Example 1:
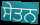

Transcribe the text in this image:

ਸੇਤਨ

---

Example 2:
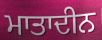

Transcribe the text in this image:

ਮਾਤਾਦੀਨ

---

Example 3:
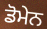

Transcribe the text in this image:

ਡੋਮੇਨ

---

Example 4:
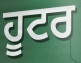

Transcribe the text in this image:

ਹੂਟਰ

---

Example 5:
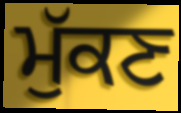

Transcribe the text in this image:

ਮੁੱਕਣ